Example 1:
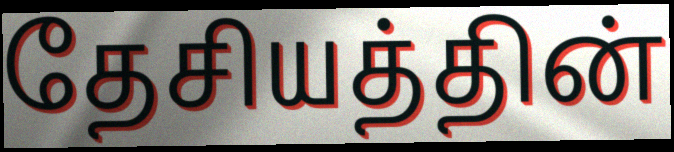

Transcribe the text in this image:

தேசியத்தின்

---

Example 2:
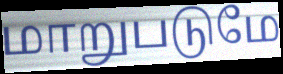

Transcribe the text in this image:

மாறுபடுமே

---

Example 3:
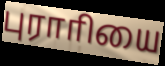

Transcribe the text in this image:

புராரியை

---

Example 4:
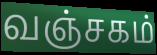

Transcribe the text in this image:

வஞ்சகம்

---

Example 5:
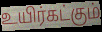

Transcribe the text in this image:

உயிர்கட்கும்